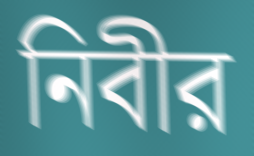
নিবীর